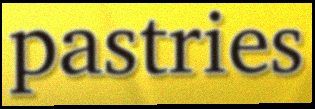
pastries